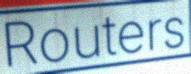
Routers